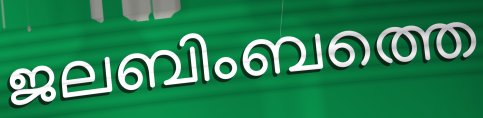
ജലബിംബത്തെ